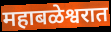
महाबळेश्वरात